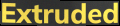
Extruded